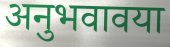
अनुभवावया